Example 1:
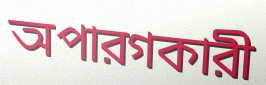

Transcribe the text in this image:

অপারগকারী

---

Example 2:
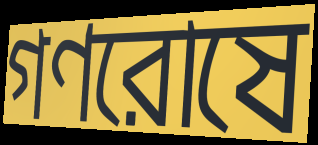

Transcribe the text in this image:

গণরোষে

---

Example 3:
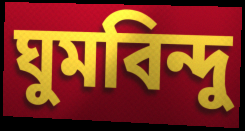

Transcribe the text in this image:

ঘুমবিন্দু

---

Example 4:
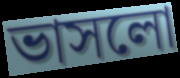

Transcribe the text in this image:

ভাসলো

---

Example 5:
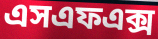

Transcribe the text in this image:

এসএফএক্স